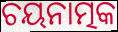
ଚୟନାତ୍ମକ